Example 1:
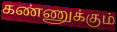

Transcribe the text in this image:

கண்ணுக்கும்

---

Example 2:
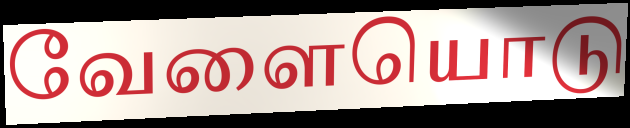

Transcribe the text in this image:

வேளையொடு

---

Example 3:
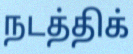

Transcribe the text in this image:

நடத்திக்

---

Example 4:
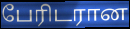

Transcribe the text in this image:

பேரிடரான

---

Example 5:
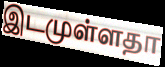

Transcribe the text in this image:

இடமுள்ளதா